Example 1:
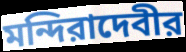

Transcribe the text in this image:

মন্দিরাদেবীর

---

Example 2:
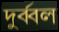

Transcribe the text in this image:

দুর্ব্বল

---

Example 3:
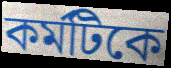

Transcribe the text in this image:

কর্মটিকে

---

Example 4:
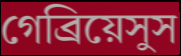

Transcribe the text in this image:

গেব্রিয়েসুস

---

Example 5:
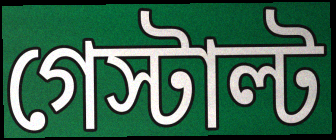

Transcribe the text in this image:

গেস্টাল্ট